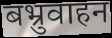
बभ्रुवाहन